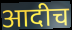
आदीच